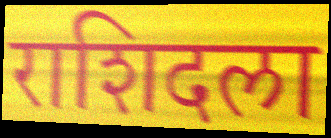
राशिदला